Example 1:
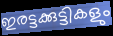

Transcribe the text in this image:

ഇരട്ടക്കുട്ടികളും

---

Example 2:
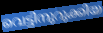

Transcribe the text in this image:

വെട്ടിനുറുക്കിയ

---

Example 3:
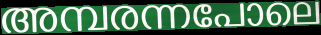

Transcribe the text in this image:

അമ്പരന്നപോലെ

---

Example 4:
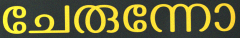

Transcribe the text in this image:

ചേരുന്നോ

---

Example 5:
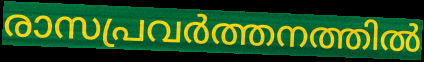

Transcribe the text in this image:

രാസപ്രവർത്തനത്തിൽ